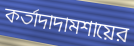
কর্তাদাদামশায়ের